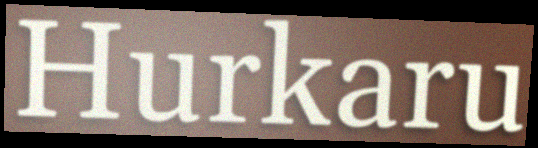
Hurkaru